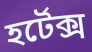
হর্টেক্স